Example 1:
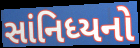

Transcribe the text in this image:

સાંનિધ્યનો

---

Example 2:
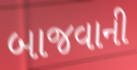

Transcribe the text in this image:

બાજવાની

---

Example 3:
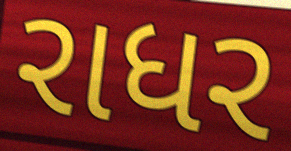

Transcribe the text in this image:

રાધર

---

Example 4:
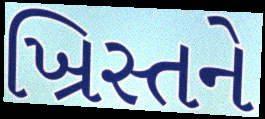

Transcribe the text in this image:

ખ્રિસ્તને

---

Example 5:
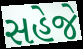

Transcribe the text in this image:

સહેજે